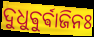
ଦୁଧୁଵୁର୍ଵାଜିନଃ